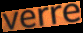
verre